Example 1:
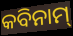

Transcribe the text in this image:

କବିନାମ୍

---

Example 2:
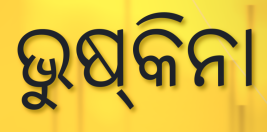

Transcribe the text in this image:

ଭୁଷ୍‌କିନା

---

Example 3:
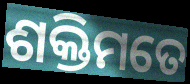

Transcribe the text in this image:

ଶକ୍ତିମତେ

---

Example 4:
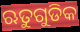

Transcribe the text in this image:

ଋତୁଗୁଡିକ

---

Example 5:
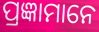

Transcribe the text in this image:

ପ୍ରଜ୍ଞାମାନେ